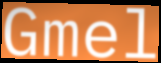
Gmel